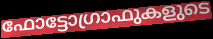
ഫോട്ടോഗ്രാഫുകളുടെ